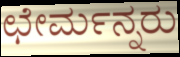
ಛೇರ್ಮನ್ನರು